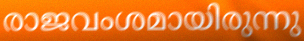
രാജവംശമായിരുന്നു